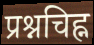
प्रश्नचिह्न